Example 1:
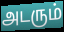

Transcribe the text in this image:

அடரும்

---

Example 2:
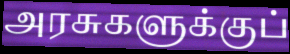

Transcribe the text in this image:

அரசுகளுக்குப்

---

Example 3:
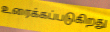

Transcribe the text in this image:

உரைக்கப்படுகிறது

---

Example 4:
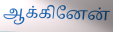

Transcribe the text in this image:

ஆக்கினேன்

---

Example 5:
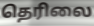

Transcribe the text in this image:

தெரிலை